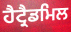
ਹੈਟ੍ਰੈਡਮਿਲ